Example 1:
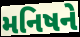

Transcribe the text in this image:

મનિષને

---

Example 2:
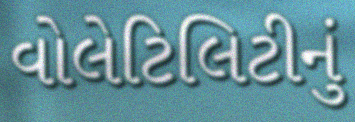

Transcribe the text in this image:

વોલેટિલિટીનું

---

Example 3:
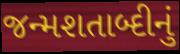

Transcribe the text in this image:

જન્મશતાબ્દીનું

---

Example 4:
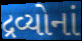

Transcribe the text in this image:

દ્રવ્યોનાં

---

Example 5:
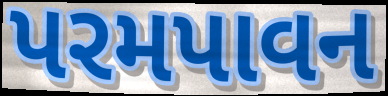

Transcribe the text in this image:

પરમપાવન